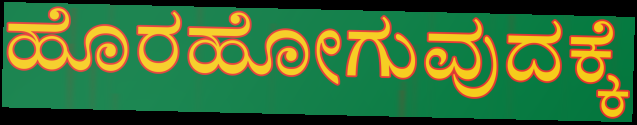
ಹೊರಹೋಗುವುದಕ್ಕೆ